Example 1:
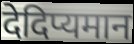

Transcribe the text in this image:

देदिप्यमान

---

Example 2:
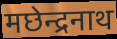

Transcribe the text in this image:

मछेन्द्रनाथ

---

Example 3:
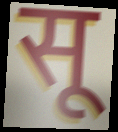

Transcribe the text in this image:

सू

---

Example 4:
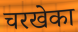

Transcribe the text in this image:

चरखेका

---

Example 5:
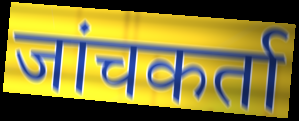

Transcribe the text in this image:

जांचकर्ता